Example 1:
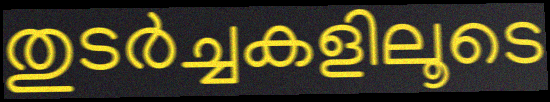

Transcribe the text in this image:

തുടർച്ചകളിലൂടെ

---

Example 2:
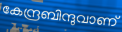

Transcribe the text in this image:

കേന്ദ്രബിന്ദുവാണ്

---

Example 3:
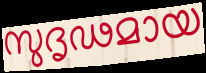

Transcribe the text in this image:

സുദൃഢമായ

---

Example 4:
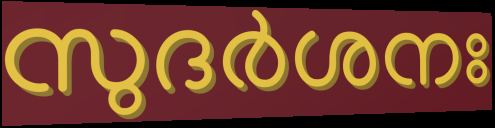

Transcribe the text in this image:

സുദർശനഃ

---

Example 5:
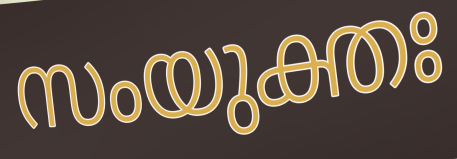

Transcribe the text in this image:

സംയുക്തഃ